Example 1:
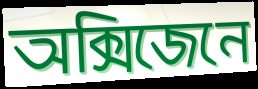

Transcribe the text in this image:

অক্সিজেনে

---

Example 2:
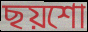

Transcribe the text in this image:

ছয়শো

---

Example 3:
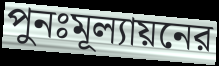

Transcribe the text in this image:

পুনঃমূল্যায়নের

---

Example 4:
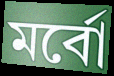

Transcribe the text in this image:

মর্বো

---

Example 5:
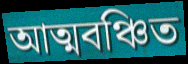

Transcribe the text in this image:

আত্মবঞ্চিত